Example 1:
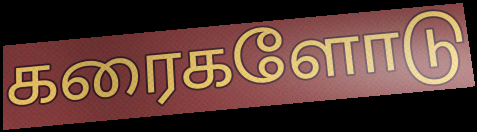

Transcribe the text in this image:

கரைகளோடு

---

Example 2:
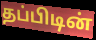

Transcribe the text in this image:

தப்பிடின்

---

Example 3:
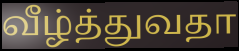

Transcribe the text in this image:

வீழ்த்துவதா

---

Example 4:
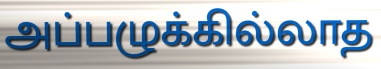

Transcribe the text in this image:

அப்பழுக்கில்லாத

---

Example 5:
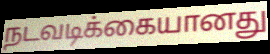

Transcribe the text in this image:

நடவடிக்கையானது